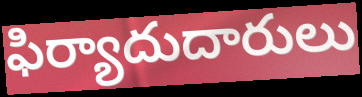
ఫిర్యాదుదారులు